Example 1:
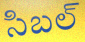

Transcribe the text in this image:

సిబల్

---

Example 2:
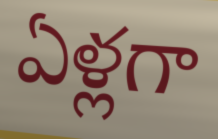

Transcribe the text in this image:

ఏళ్లగా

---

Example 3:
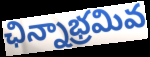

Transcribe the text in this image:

ఛిన్నాభ్రమివ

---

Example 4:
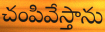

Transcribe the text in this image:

చంపివేస్తాను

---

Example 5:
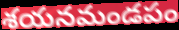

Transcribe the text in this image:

శయనమండపం